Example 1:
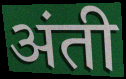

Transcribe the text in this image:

अंती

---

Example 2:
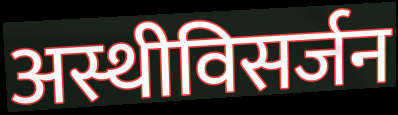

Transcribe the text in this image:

अस्थीविसर्जन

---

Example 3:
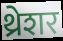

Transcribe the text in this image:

थ्रेशर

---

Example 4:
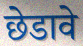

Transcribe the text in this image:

छेडावे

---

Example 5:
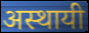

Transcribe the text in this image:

अस्थायी